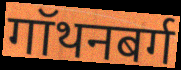
गॉथनबर्ग